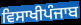
ਵਿਸਾਖੀਪੰਜਾਬ